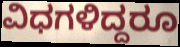
ವಿಧಗಳಿದ್ದರೂ